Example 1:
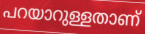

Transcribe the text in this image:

പറയാറുള്ളതാണ്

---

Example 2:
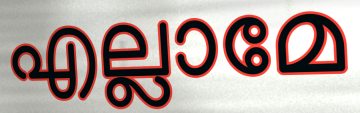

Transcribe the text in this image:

എല്ലാമേ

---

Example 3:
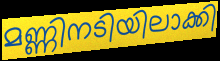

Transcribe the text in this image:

മണ്ണിനടിയിലാക്കി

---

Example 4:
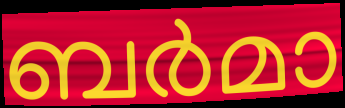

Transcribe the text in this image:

ബർമാ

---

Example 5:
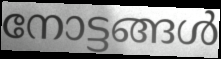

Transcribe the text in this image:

നോട്ടങ്ങൾ